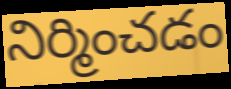
నిర్మించడం